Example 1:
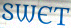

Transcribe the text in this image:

SWET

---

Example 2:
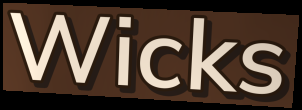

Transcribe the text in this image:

Wicks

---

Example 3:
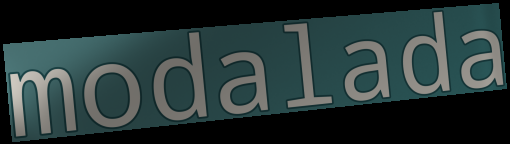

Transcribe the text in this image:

modalada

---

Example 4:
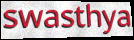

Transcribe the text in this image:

swasthya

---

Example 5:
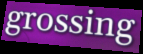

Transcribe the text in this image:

grossing